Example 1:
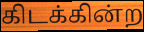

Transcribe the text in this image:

கிடக்கின்ற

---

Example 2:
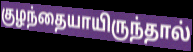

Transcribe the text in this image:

குழந்தையாயிருந்தால்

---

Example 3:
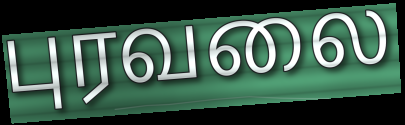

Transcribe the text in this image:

புரவலை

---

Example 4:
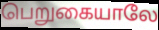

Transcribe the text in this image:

பெறுகையாலே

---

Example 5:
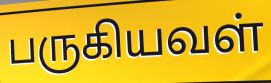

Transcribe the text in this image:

பருகியவள்